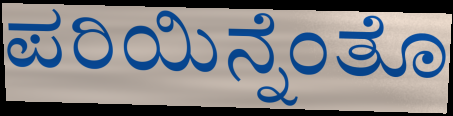
ಪರಿಯಿನ್ನೆಂತೊ